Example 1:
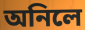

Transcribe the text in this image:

অনিলে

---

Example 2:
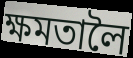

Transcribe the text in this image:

ক্ষমতালৈ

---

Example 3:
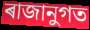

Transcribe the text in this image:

ৰাজানুগত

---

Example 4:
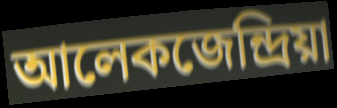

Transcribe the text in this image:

আলেকজেন্দ্ৰিয়া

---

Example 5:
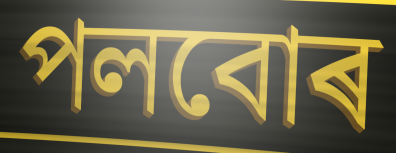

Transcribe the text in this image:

পলবোৰ